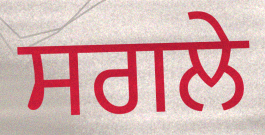
ਸਗਲੇ